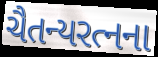
ચૈતન્યરત્નના